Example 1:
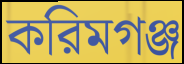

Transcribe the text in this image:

করিমগঞ্জ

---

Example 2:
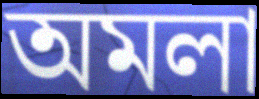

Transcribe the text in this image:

অমলা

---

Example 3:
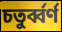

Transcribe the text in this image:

চতুর্ব্বর্ণ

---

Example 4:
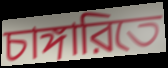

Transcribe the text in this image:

চাঙ্গারিতে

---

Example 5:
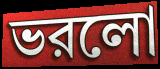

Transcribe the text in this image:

ভরলো